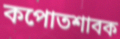
কপোতশাবক